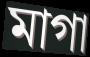
মাগা